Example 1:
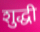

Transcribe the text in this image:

शुद्धी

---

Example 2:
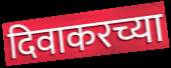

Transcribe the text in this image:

दिवाकरच्या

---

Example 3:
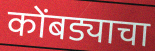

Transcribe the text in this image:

कोंबड्याचा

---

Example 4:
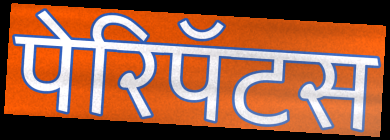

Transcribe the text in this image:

पेरिपॅटस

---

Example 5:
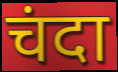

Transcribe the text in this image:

चंदा